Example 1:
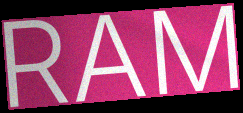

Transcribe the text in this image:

RAM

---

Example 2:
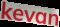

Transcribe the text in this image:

kevan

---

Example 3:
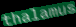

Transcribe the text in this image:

thalamus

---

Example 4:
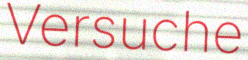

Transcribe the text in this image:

Versuche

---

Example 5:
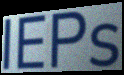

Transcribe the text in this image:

IEPs